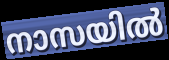
നാസയിൽ